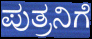
ಪುತ್ರನಿಗೆ